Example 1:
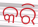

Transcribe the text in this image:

କରି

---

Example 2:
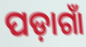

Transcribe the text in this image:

ପଡ଼ାଗାଁ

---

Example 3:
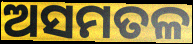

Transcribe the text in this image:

ଅସମତଳ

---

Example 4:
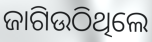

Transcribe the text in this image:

ଜାଗିଉଠିଥିଲେ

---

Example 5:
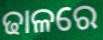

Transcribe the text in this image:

ଢାଳରେ